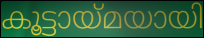
കൂട്ടായ്മയായി